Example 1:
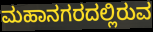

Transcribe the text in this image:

ಮಹಾನಗರದಲ್ಲಿರುವ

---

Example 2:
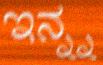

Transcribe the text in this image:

ಇನ್ನ್ನ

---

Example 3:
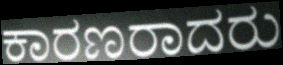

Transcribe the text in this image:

ಕಾರಣರಾದರು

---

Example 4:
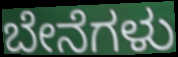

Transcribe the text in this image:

ಬೇನೆಗಳು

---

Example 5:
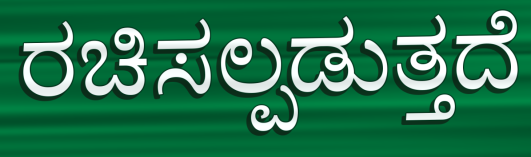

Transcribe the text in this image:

ರಚಿಸಲ್ಪಡುತ್ತದೆ